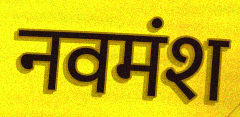
नवमंश